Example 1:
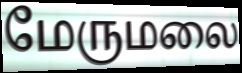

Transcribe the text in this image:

மேருமலை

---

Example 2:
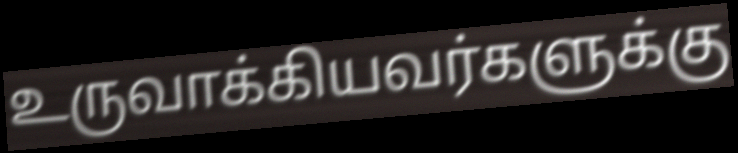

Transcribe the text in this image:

உருவாக்கியவர்களுக்கு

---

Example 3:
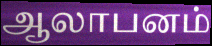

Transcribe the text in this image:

ஆலாபனம்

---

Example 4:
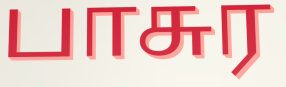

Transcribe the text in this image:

பாசுர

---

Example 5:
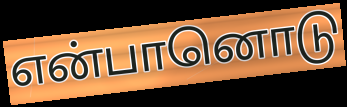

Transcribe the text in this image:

என்பானொடு